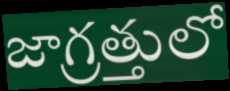
జాగ్రత్తులో